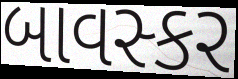
બાવસ્કર